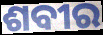
ଶବୀର